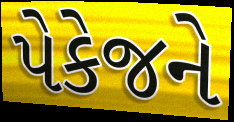
પેકેજને